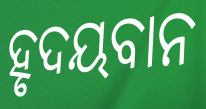
ହୃଦୟବାନ